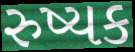
રુષ્યક